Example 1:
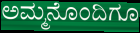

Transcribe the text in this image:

ಅಮ್ಮನೊಂದಿಗೂ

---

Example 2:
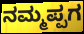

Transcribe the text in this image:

ನಮ್ಮಪ್ಪಗ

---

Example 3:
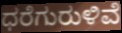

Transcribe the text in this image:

ಧರೆಗುರುಳಿವೆ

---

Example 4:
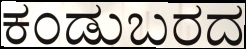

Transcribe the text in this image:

ಕಂಡುಬರದ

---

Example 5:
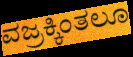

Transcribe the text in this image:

ವಜ್ರಕ್ಕಿಂತಲೂ